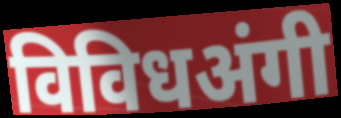
विविधअंगी